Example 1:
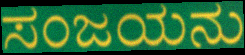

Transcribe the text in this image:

ಸಂಜಯನು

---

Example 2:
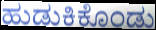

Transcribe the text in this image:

ಹುಡುಕಿಕೊಂಡು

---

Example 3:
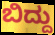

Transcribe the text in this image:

ಬಿದ್ದು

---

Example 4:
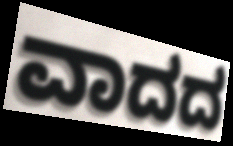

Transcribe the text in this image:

ವಾದದ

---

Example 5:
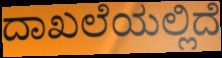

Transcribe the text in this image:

ದಾಖಲೆಯಲ್ಲಿದೆ